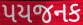
પયજનક